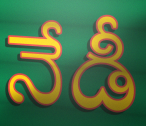
నేడీ